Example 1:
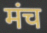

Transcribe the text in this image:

मंच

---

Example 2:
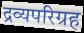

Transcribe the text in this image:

द्रव्यपरिग्रह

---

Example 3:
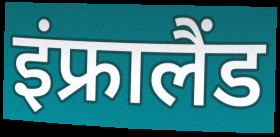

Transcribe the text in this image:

इंफ्रालैंड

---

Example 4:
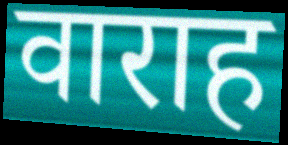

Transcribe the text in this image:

वाराह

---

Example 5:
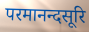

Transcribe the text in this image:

परमानन्दसूरि